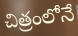
చిత్రంలోనే